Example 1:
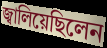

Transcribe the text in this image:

জ্বালিয়েছিলেন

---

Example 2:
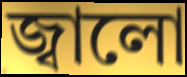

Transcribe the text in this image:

জ্বালো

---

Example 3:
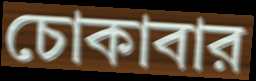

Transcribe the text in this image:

চোকাবার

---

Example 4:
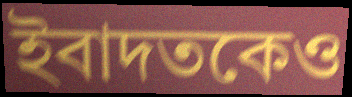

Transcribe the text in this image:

ইবাদতকেও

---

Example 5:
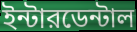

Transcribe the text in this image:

ইন্টারডেন্টাল